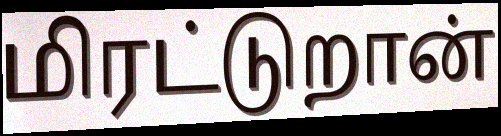
மிரட்டுறான்